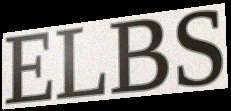
ELBS